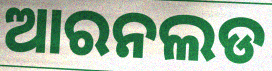
ଆରନଲଡ